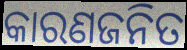
କାରଣଜନିତ